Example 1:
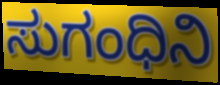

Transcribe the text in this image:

ಸುಗಂಧಿನಿ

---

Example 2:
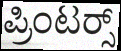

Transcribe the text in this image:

ಪ್ರಿಂಟರ‍್ಸ್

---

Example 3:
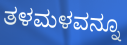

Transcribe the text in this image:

ತಳಮಳವನ್ನೂ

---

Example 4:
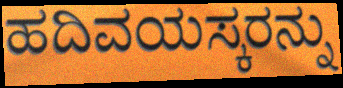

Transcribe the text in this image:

ಹದಿವಯಸ್ಕರನ್ನು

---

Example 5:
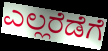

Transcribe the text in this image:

ಎಲ್ಲರೆಡೆಗೆ